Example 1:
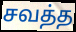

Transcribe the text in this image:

சவத்த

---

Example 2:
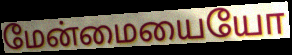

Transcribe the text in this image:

மேன்மையையோ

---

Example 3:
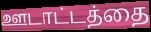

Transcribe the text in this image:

ஊடாட்டத்தை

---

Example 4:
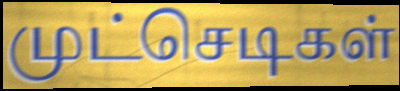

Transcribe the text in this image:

முட்செடிகள்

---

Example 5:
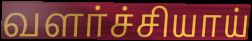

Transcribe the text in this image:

வளர்ச்சியாய்